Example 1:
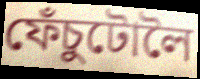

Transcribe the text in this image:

ফেঁচুটোলৈ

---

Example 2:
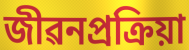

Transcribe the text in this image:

জীৱনপ্ৰক্ৰিয়া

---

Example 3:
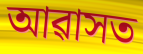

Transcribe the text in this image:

আৱাসত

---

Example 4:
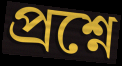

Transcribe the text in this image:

প্ৰশ্নে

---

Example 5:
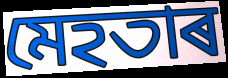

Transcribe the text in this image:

মেহতাৰ